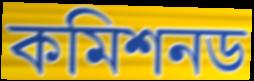
কমিশনড